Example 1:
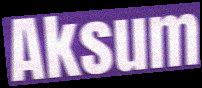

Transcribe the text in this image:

Aksum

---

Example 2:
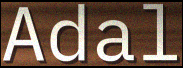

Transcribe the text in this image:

Adal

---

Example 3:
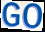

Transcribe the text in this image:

GO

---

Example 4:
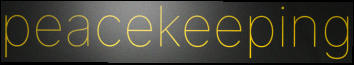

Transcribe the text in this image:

peacekeeping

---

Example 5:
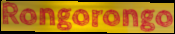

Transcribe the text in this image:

Rongorongo